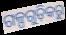
ଗଳ୍ପଗୁଡ଼ିକରୁ